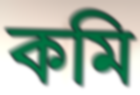
কমি